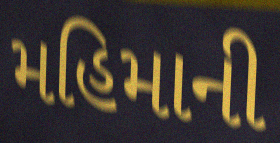
મહિમાની